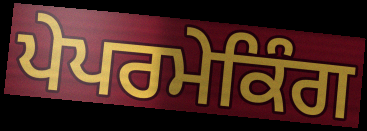
ਪੇਪਰਮੇਕਿੰਗ